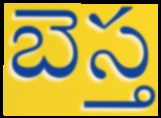
బెస్త